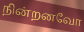
நின்றனவோ